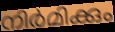
നിർമിക്കും